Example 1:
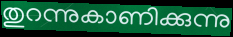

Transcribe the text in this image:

തുറന്നുകാണിക്കുന്നു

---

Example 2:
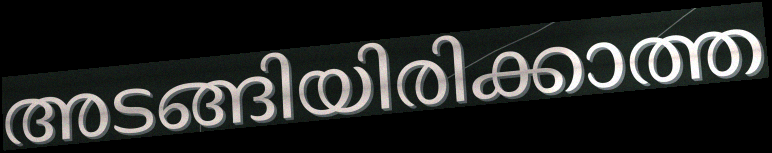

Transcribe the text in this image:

അടങ്ങിയിരിക്കാത്ത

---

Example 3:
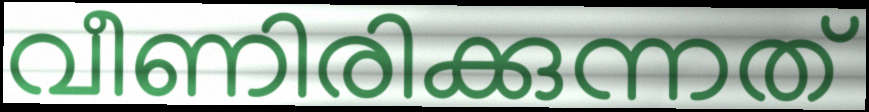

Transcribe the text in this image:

വീണിരിക്കുന്നത്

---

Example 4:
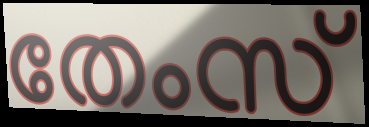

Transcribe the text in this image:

തേംസ്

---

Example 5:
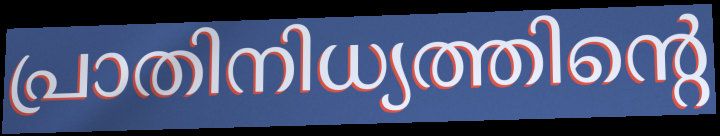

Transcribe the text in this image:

പ്രാതിനിധ്യത്തിന്റെ